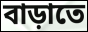
বাড়াতে